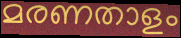
മരണതാളം